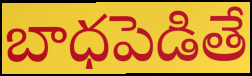
బాధపెడితే